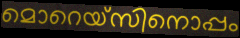
മൊറെയ്സിനൊപ്പം